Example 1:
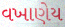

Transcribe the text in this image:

વખાણેય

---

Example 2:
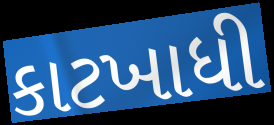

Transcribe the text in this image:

કાટખાધી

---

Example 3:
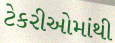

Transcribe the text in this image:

ટેકરીઓમાંથી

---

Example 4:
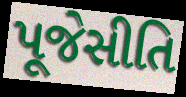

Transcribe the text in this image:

પૂજેસીતિ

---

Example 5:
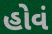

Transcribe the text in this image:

હોવં